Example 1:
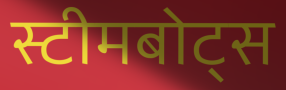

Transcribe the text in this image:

स्टीमबोट्स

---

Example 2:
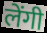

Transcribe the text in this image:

लेंगी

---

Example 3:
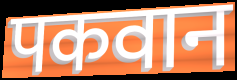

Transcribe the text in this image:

पकवान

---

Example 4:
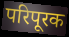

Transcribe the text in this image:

परिपूरक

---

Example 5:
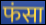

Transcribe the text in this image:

फंसा